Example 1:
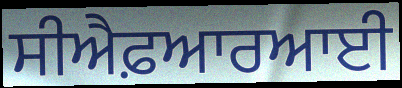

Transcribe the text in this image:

ਸੀਐਫ਼ਆਰਆਈ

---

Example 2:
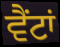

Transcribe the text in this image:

ਵੈਂਟਾਂ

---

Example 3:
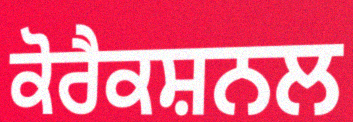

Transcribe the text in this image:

ਕੋਰੈਕਸ਼ਨਲ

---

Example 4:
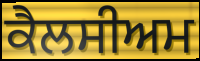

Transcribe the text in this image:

ਕੈਲਸੀਅਮ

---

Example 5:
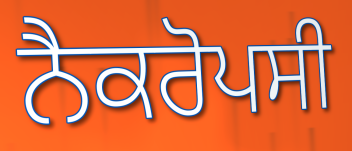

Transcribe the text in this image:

ਨੈਕਰੋਪਸੀ